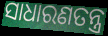
ସାଧାରଣତନ୍ତ୍ର